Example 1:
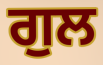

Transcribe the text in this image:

ਗੁਲ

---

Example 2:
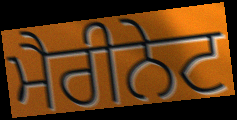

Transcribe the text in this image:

ਮੈਰੀਨੇਟ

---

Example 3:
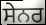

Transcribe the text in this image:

ਸੇਨਰ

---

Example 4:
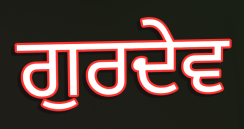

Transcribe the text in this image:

ਗੁਰਦੇਵ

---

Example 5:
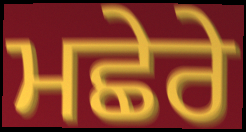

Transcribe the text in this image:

ਮਛੇਰੇ